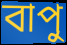
বাপু